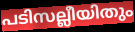
പടിസല്ലീയിതും